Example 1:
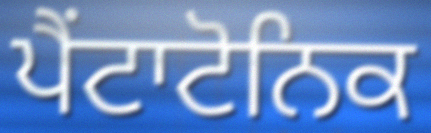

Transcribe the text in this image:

ਪੈਂਟਾਟੋਨਿਕ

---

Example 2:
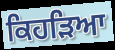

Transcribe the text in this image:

ਕਿਹੜਿਆ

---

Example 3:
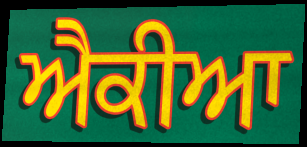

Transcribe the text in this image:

ਐਕੀਆ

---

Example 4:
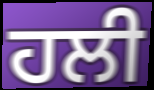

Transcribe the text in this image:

ਹਲੀ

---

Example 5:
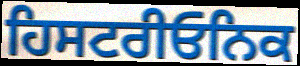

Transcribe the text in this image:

ਹਿਸਟਰੀਓਨਿਕ